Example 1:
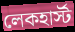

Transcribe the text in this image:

লেকহার্স্ট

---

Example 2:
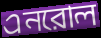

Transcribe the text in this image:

এনরোল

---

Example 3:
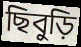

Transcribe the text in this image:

ছিবুড়ি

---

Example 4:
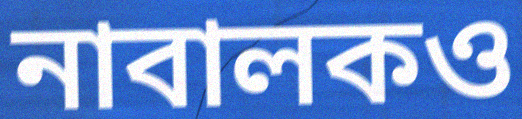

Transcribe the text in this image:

নাবালকও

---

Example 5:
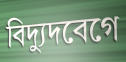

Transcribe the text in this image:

বিদ্যুদবেগে